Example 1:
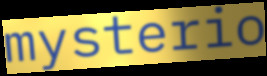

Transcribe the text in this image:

mysterio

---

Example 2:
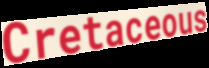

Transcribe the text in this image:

Cretaceous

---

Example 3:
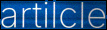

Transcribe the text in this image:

artilcle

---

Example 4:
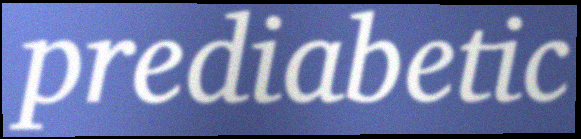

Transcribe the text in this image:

prediabetic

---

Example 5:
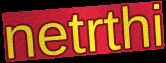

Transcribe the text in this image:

netrthi